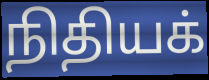
நிதியக்